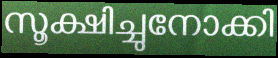
സൂക്ഷിച്ചുനോക്കി